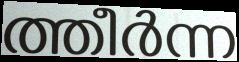
ത്തീർന്ന